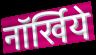
नॉर्खिये